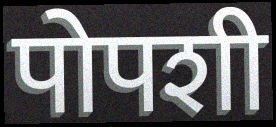
पोपशी